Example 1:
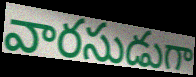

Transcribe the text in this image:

వారసుడుగా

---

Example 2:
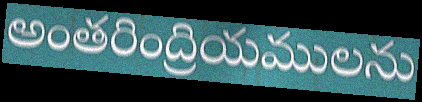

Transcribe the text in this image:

అంతరింద్రియములను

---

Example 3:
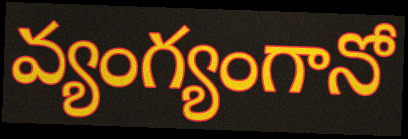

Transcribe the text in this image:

వ్యంగ్యంగానో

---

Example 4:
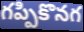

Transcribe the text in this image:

గప్పికొనగ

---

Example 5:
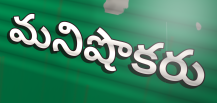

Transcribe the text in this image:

మనిషొకరు